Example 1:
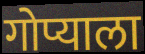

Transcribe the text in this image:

गोप्याला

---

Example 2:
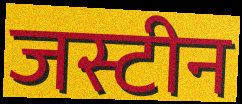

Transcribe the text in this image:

जस्टीन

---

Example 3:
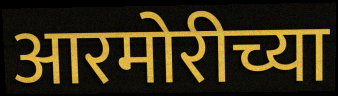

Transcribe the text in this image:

आरमोरीच्या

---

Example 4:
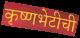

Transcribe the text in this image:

कृष्णभेटीची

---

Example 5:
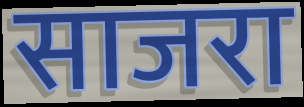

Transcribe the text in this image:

साजरा